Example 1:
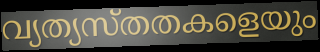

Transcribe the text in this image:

വ്യത്യസ്തതകളെയും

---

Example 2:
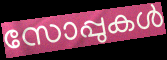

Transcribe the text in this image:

സോപ്പുകൾ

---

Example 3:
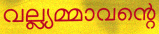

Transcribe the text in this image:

വല്ല്യമ്മാവന്റെ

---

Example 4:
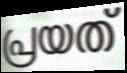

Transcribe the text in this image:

പ്രയത്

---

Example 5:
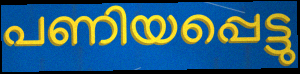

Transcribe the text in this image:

പണിയപ്പെട്ടു